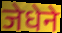
जेधेने